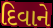
દિવાને